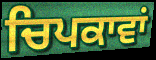
ਚਿਪਕਾਵਾਂ